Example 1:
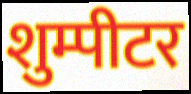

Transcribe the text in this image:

शुम्पीटर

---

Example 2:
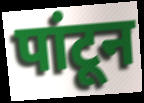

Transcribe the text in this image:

पांटून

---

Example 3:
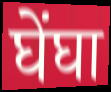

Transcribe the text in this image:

घेंघा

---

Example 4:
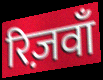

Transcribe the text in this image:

रिज़वाँ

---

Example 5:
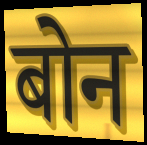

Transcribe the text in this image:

बोन